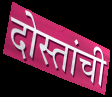
दोस्तांची